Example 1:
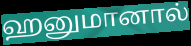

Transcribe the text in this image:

ஹனுமானால்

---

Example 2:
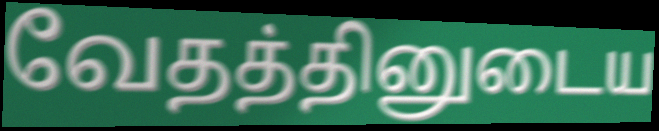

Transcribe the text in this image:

வேதத்தினுடைய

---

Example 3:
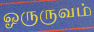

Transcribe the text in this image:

ஓருருவம்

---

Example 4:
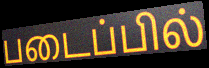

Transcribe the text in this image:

படைப்பில்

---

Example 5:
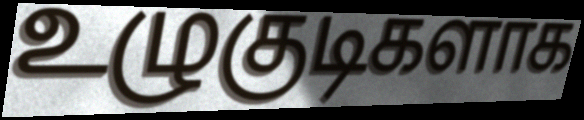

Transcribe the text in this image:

உழுகுடிகளாக